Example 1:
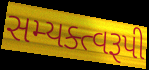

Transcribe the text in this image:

સમ્યક્ત્વરૂપી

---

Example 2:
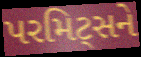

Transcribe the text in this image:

પરમિટ્સને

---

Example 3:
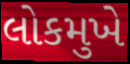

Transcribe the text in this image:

લોકમુખે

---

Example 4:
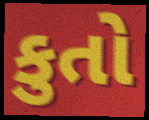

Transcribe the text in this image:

કુતો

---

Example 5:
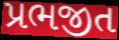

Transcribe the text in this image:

પ્રભજીત